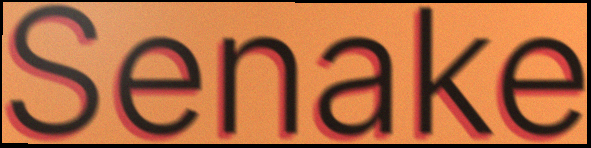
Senake